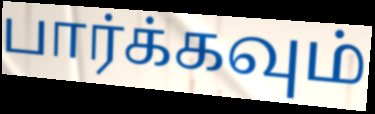
பார்க்கவும்